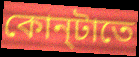
কোন্‌টাতে